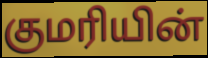
குமரியின்